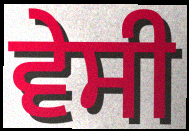
ਵੇਸੀ